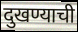
दुखण्याची